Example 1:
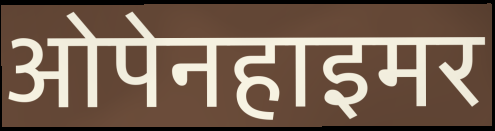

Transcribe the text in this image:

ओपेनहाइमर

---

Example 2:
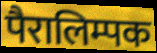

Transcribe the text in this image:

पैरालिम्पक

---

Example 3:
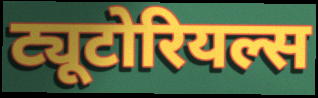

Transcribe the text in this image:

ट्यूटोरियल्स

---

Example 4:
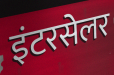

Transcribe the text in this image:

इंटरसेलर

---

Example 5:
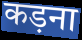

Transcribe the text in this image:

कड़ना